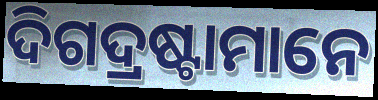
ଦିଗଦ୍ରଷ୍ଟାମାନେ